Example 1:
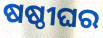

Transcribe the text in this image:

ଷଷ୍ଠୀଘର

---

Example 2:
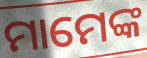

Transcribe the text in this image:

ମାମେଙ୍କ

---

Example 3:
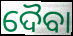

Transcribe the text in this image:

ଦୈବା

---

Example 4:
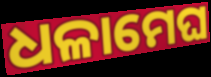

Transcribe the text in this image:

ଧଳାମେଘ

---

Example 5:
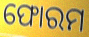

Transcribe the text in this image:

ଫୋରମ